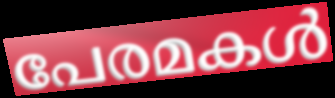
പേരമകൾ